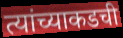
त्यांच्याकडची